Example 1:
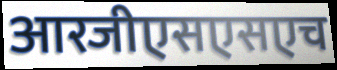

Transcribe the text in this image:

आरजीएसएसएच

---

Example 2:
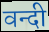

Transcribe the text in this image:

वन्दी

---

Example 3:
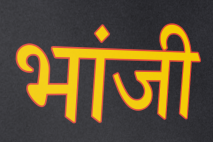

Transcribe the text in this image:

भांजी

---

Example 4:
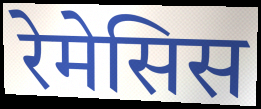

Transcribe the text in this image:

रेमेसिस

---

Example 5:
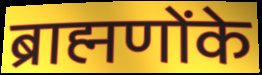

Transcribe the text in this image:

ब्राह्मणोंके